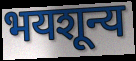
भयशून्य